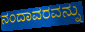
ನಂದಾವರವನ್ನು